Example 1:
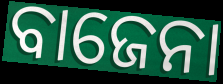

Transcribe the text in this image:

ବାଜେନା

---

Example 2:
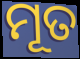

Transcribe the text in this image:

ମୂତ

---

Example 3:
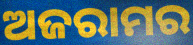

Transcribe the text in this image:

ଅଜରାମର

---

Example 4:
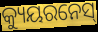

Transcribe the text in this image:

କ୍ୟୁୟରନେସ୍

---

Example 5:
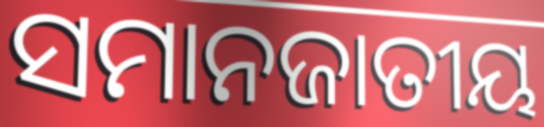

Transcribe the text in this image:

ସମାନଜାତୀୟ